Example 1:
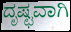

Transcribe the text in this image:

ದೃಷ್ಟವಾಗಿ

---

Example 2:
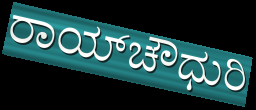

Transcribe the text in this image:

ರಾಯ್‌ಚೌಧುರಿ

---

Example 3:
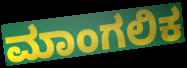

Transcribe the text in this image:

ಮಾಂಗಲಿಕ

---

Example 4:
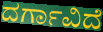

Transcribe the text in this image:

ದರ್ಗಾವಿದೆ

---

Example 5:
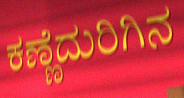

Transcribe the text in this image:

ಕಣ್ಣೆದುರಿಗಿನ